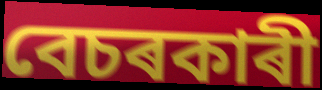
বেচৰকাৰী